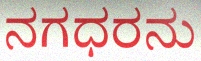
ನಗಧರನು